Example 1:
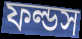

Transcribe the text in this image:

ফল্ডস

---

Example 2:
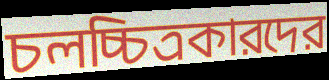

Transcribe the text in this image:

চলচ্চিত্রকারদের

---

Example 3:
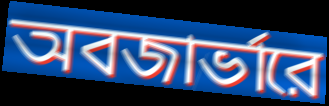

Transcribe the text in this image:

অবজার্ভারে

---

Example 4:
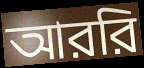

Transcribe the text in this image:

আররি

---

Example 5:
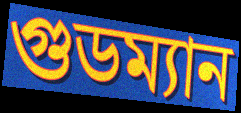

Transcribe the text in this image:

গুডম্যান